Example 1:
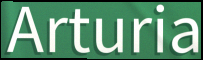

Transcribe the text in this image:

Arturia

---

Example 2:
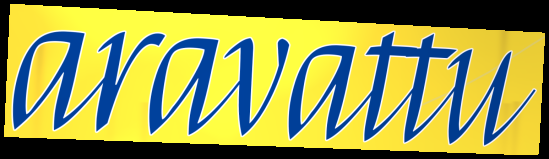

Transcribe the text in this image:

aravattu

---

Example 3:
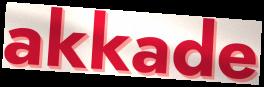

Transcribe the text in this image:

akkade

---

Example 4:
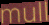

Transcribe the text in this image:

mull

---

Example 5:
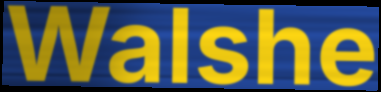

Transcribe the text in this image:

Walshe